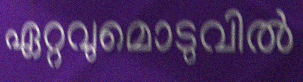
ഏറ്റവുമൊടുവിൽ